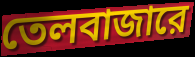
তেলবাজারে